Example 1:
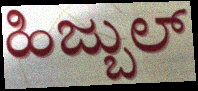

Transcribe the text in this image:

ಹಿಜ್ಬುಲ್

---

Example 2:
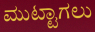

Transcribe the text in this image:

ಮುಟ್ಟಾಗಲು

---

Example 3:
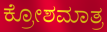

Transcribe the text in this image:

ಕ್ರೋಶಮಾತ್ರ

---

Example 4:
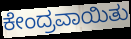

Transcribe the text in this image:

ಕೇಂದ್ರವಾಯಿತು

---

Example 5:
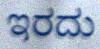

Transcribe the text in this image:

ಇರದು